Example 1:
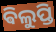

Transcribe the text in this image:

ଵିଲୁପ୍ତି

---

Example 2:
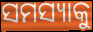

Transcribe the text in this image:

ସମସ୍ୟାକୁ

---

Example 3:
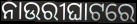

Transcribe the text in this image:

ନାଉରୀଘାଟରେ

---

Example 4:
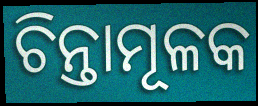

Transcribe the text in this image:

ଚିନ୍ତାମୂଳକ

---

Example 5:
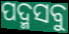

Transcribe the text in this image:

ପଦ୍ମସବୁ